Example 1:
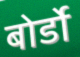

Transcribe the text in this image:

बोर्डो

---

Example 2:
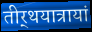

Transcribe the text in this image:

तीर्थयात्रायां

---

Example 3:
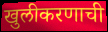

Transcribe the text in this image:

खुलीकरणाची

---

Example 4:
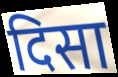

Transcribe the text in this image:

दिसा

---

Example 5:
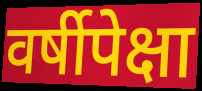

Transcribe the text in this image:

वर्षीपेक्षा